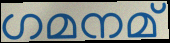
ഗമനമ്